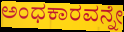
ಅಂಧಕಾರವನ್ನೇ